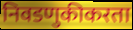
निवडणुकीकरता